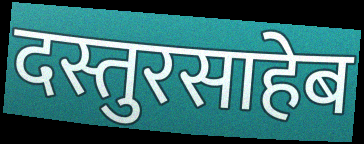
दस्तुरसाहेब